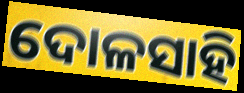
ଦୋଳସାହି